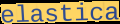
elastica